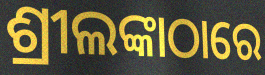
ଶ୍ରୀଲଙ୍କାଠାରେ